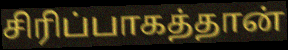
சிரிப்பாகத்தான்